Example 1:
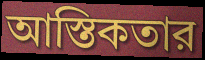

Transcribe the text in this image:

আস্তিকতার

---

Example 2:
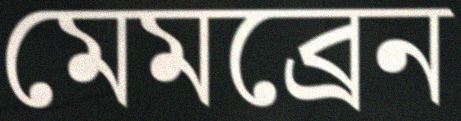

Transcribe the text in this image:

মেমব্রেন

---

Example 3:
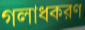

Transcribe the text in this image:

গলাধকরণ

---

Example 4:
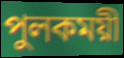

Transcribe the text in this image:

পুলকময়ী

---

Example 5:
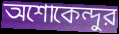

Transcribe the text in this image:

অশোকেন্দুর